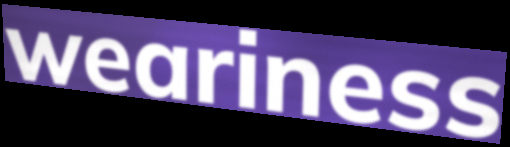
weariness